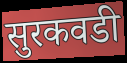
सुरकवडी